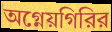
অগ্নেয়গিরির